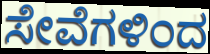
ಸೇವೆಗಳಿಂದ